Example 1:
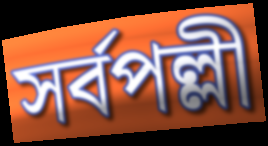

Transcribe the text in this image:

সর্বপল্লী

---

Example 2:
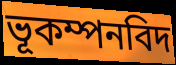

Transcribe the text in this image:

ভূকম্পনবিদ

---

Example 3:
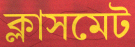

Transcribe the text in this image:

ক্লাসমেট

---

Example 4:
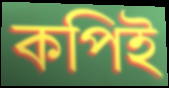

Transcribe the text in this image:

কপিই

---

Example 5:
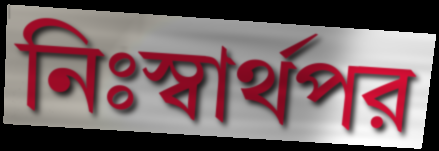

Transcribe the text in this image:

নিঃস্বার্থপর